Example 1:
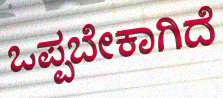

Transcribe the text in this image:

ಒಪ್ಪಬೇಕಾಗಿದೆ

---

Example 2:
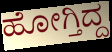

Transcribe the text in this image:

ಹೋಗ್ತಿದ್ದ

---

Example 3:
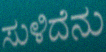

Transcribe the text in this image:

ಸುಳಿದೆನು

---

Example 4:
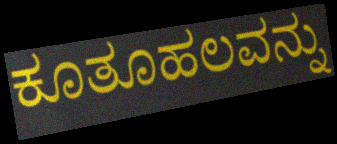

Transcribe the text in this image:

ಕೂತೂಹಲವನ್ನು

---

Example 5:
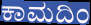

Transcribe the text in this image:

ಕಾಮದಿಂ